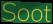
Soot